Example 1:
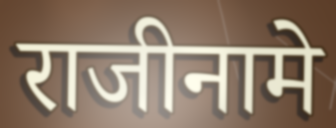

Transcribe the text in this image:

राजीनामे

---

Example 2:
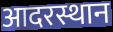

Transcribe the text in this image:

आदरस्थान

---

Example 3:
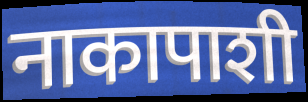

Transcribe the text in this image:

नाकापाशी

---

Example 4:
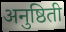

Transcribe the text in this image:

अनुष्ठिती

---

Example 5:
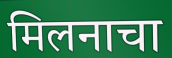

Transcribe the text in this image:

मिलनाचा